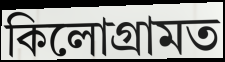
কিলোগ্ৰামত